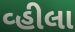
વ્હીલા